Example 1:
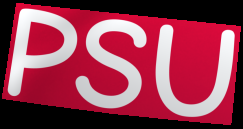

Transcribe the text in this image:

PSU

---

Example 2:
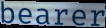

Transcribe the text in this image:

bearer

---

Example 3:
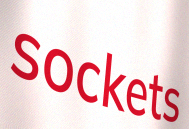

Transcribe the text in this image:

sockets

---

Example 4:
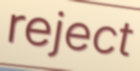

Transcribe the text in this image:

reject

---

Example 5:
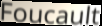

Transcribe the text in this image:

Foucault